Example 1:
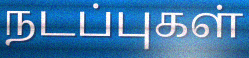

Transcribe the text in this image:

நடப்புகள்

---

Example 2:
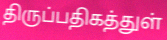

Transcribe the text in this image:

திருப்பதிகத்துள்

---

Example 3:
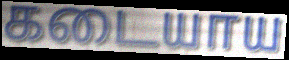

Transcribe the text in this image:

கடையாய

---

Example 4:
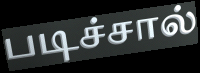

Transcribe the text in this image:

படிச்சால்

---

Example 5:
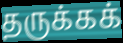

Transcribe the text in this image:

தருக்கக்